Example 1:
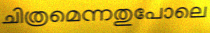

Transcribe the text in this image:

ചിത്രമെന്നതുപോലെ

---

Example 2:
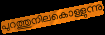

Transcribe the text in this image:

പുറത്തുനിലകൊള്ളുന്നു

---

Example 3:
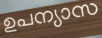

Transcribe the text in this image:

ഉപന്യാസ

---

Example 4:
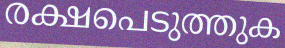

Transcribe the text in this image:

രക്ഷപെടുത്തുക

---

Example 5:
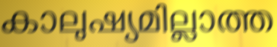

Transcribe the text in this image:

കാലുഷ്യമില്ലാത്ത